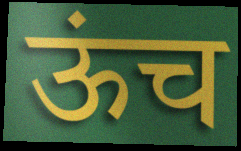
ऊंच